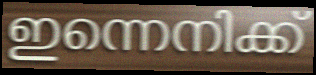
ഇന്നെനിക്ക്